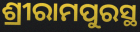
ଶ୍ରୀରାମପୁରସ୍ଥ